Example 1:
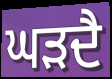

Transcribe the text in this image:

ਘੜਦੈ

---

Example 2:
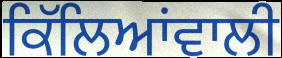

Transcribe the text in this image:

ਕਿੱਲਿਆਂਵਾਲੀ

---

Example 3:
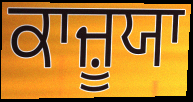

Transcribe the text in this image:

ਕਾਜ਼ੂਯਾ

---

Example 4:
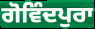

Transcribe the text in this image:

ਗੋਵਿੰਦਪੁਰਾ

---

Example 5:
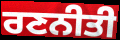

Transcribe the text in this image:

ਰਣਨੀਤੀ